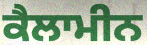
ਕੈਲਾਮੀਨ